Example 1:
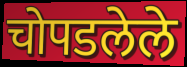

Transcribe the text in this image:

चोपडलेले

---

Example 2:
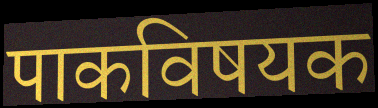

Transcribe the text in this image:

पाकविषयक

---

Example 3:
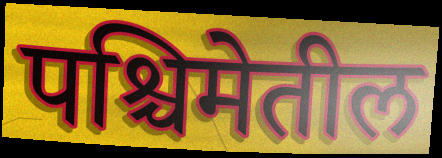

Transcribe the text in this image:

पश्चिमेतील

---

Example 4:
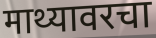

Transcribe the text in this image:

माथ्यावरचा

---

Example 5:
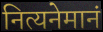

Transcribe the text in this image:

नित्यनेमानं